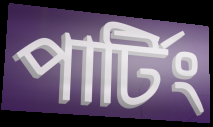
পার্টিং